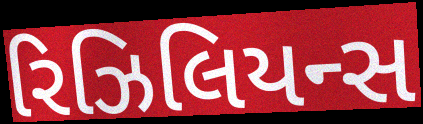
રિઝિલિયન્સ